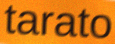
tarato